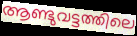
ആണ്ടുവട്ടത്തിലെ